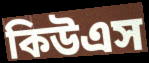
কিউএস